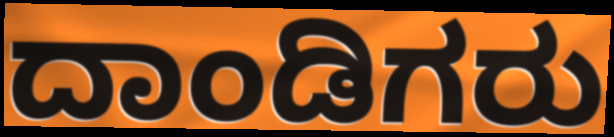
ದಾಂಡಿಗರು